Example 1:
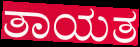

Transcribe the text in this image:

ತಾಯತ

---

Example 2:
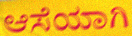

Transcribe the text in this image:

ಆಸೆಯಾಗಿ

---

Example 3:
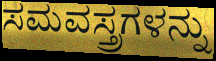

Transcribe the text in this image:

ಸಮವಸ್ತ್ರಗಳನ್ನು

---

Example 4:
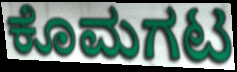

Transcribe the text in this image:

ಕೊಮಗಟ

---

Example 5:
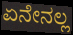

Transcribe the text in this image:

ಏನೇನಲ್ಲ